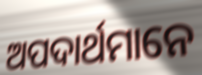
ଅପଦାର୍ଥମାନେ